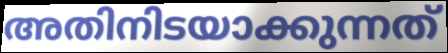
അതിനിടയാക്കുന്നത്